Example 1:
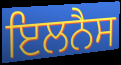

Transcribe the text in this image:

ਇਲਨੈਸ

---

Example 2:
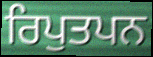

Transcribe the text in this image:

ਰਿਪੁਤਪਨ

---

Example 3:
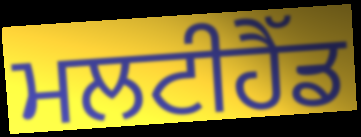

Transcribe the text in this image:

ਮਲਟੀਹੈੱਡ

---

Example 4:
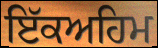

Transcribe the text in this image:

ਇੱਕਅਹਿਮ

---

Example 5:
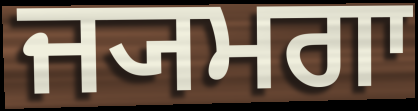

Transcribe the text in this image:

ਜ੍ਯਮਗਾ